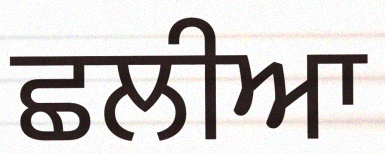
ਛਲੀਆ